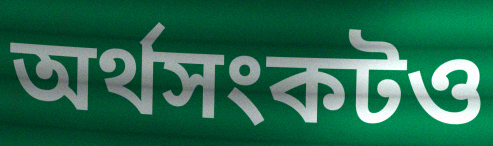
অর্থসংকটও